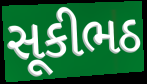
સૂકીભઠ